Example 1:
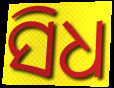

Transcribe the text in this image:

ସିଧ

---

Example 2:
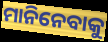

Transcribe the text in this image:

ମାନିନେବାକୁ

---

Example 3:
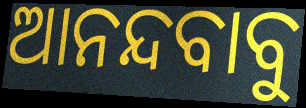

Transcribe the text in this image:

ଆନନ୍ଦବାବୁ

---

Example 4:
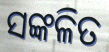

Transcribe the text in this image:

ସଙ୍କଳିତ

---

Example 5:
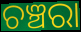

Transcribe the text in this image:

ଚଞ୍ଚରା